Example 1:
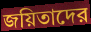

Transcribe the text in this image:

জয়িতাদের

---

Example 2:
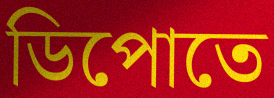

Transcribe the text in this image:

ডিপোতে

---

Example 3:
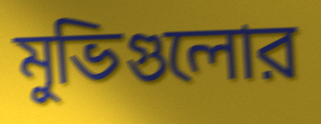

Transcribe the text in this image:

মুভিগুলোর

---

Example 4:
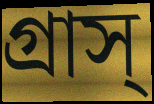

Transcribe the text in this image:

গ্রাস্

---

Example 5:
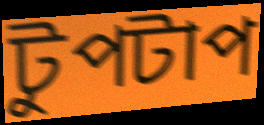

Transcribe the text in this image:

টুপটাপ